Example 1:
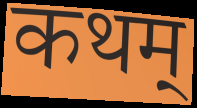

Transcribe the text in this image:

कथम्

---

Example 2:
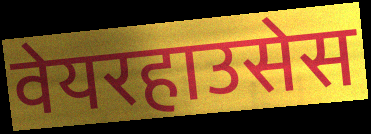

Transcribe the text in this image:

वेयरहाउसेस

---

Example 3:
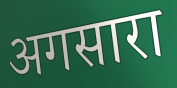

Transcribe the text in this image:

अगसारा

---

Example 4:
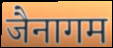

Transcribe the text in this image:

जैनागम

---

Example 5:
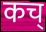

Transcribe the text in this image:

कच्